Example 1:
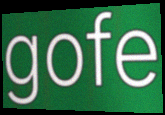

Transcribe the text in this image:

gofe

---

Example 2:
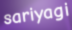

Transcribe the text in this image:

sariyagi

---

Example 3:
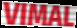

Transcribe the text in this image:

VIMAL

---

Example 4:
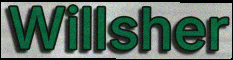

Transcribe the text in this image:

Willsher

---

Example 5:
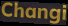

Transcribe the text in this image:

Changi